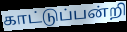
காட்டுப்பன்றி